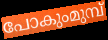
പോകുംമുമ്പ്